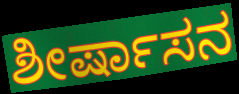
ಶೀರ್ಷಾಸನ